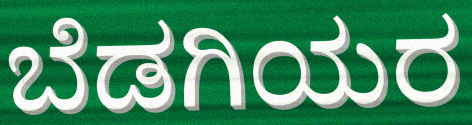
ಬೆಡಗಿಯರ